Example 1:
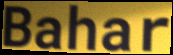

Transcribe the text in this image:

Bahar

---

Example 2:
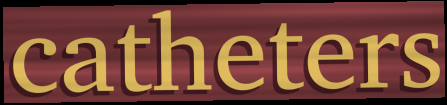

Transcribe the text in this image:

catheters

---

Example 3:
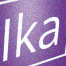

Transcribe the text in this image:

Ika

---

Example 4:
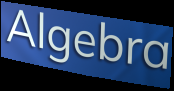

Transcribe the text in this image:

Algebra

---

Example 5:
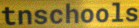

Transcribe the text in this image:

tnschools